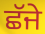
ਛੱਜੇ